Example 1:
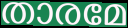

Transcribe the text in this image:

താരമേ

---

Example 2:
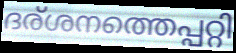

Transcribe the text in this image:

ദര്ശനത്തെപ്പറ്റി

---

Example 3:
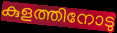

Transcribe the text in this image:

കുളത്തിനോടു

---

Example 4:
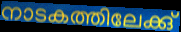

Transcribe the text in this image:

നാടകത്തിലേക്കു്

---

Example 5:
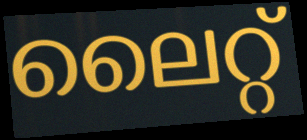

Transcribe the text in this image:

ലൈറ്റ്